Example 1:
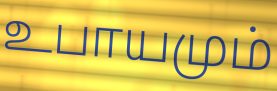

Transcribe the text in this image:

உபாயமும்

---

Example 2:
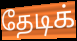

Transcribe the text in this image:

தேடிக்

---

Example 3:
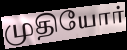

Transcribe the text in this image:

முதியோர்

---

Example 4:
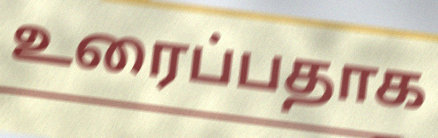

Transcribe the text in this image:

உரைப்பதாக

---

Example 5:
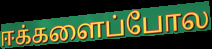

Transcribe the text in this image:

ஈக்களைப்போல